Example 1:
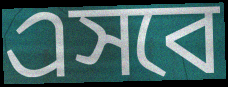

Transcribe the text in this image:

এসবে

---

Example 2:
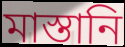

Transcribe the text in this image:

মাস্তানি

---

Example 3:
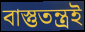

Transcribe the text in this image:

বাস্তুতন্ত্রই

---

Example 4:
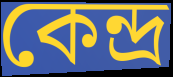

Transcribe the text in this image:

কেন্দ্র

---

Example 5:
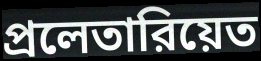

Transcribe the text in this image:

প্রলেতারিয়েত